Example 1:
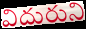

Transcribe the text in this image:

విదురుని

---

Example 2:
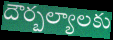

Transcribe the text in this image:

దౌర్బల్యాలకు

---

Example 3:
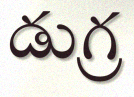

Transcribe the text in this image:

డుగ్ర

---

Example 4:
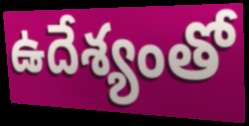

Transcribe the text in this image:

ఉదేశ్యంతో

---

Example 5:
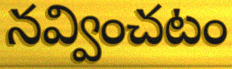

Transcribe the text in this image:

నవ్వించటం